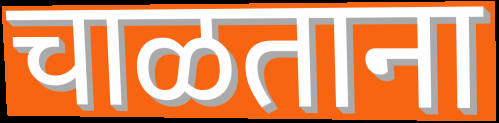
चाळताना